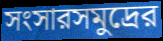
সংসারসমুদ্রের